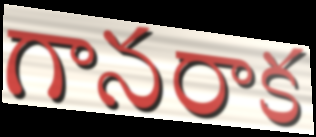
గానరాక